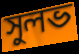
সুলভ